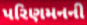
પરિણમનની